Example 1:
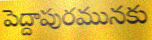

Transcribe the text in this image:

పెద్దాపురమునకు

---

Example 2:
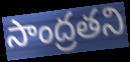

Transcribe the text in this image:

సాంద్రతని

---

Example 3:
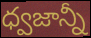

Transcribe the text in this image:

ధ్వజాన్నీ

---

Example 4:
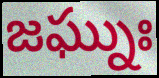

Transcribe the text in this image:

జఘ్నుః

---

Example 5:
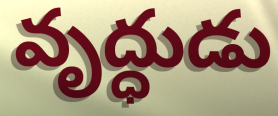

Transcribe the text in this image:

వృద్ధుడు